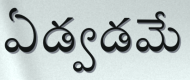
ఏడ్వడమే